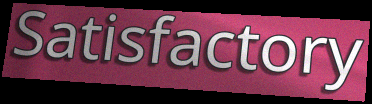
Satisfactory